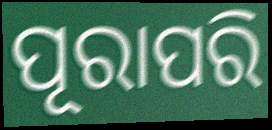
ପୂରାପରି